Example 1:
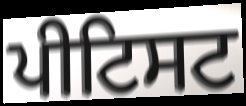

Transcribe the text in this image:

ਪੀਟਿਸਟ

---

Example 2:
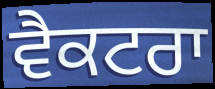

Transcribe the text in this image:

ਵੈਕਟਰਾ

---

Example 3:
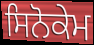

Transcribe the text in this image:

ਸਿਨੋਕੇਮ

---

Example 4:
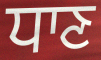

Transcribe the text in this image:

ਧਾਣ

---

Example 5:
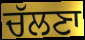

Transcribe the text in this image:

ਚੱਲਣਾ